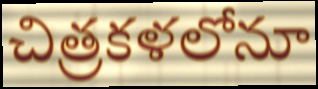
చిత్రకళలోనూ